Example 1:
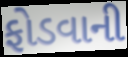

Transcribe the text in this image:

ફોડવાની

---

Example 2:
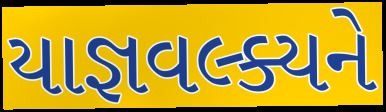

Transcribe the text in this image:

યાજ્ઞવલ્ક્યને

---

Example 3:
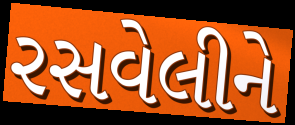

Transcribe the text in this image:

રસવેલીને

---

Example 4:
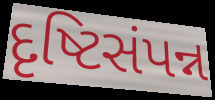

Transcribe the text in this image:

દૃષ્ટિસંપન્ન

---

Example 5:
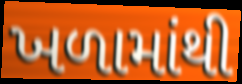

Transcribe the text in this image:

ખળામાંથી